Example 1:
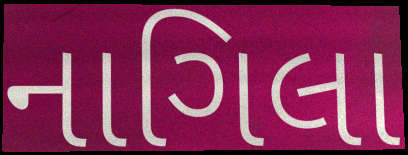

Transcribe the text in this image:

નાગિલા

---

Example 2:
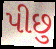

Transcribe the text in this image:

પીછુ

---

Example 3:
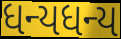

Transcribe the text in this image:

ધન્યધન્ય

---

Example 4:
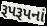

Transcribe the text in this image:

રૂપરૂપનાં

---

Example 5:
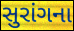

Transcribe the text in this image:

સુરાંગના